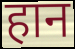
हान